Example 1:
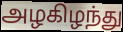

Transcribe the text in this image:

அழகிழந்து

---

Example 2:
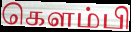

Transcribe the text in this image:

கெளம்பி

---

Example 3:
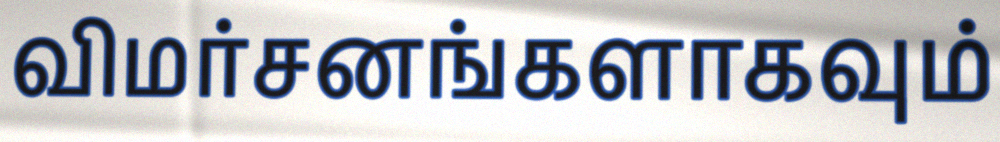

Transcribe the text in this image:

விமர்சனங்களாகவும்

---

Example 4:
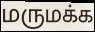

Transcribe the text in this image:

மருமக்க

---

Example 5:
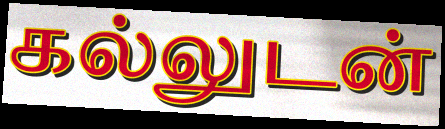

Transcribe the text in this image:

கல்லுடன்